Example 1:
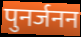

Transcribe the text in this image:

पुनर्जनन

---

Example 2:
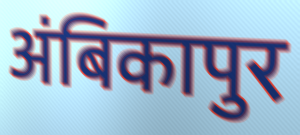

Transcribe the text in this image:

अंबिकापुर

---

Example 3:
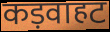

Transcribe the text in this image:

कड़वाहट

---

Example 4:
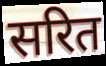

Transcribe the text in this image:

सरित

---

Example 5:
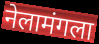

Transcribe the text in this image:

नेलामंगला